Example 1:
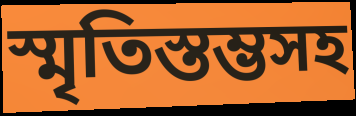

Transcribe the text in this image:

স্মৃতিস্তম্ভসহ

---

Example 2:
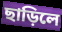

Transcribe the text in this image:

ছাড়িলে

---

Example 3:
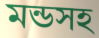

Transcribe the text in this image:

মন্ডসহ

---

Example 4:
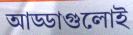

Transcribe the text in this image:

আড্ডাগুলোই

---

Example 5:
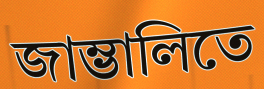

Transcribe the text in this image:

জাম্ভালিতে